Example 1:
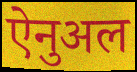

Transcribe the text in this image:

ऐनुअल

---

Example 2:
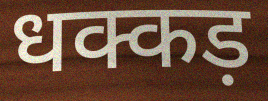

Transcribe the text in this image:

धक्कड़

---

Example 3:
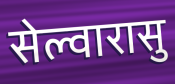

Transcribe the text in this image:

सेल्वारासु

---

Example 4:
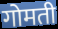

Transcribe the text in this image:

गोमती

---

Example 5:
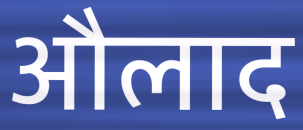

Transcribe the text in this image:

औलाद